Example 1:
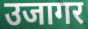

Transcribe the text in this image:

उजागर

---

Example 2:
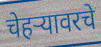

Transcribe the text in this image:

चेहऱ्यावरचे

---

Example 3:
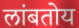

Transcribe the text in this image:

लांबतोय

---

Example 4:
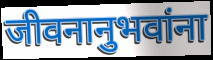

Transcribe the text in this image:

जीवनानुभवांना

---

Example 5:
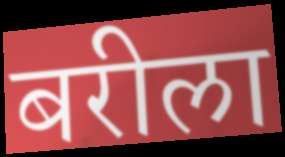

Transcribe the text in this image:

बरीला